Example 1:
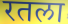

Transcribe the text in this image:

रतला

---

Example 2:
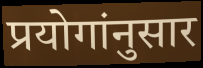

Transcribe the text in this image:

प्रयोगांनुसार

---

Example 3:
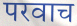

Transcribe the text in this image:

परवाच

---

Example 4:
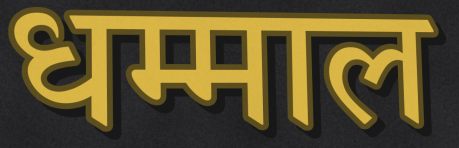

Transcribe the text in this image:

धम्माल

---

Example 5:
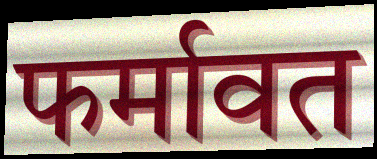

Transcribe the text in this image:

फर्मावत